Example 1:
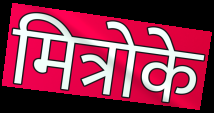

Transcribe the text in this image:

मित्रोके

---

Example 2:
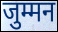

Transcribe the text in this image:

जुम्मन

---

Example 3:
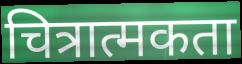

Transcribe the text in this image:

चित्रात्मकता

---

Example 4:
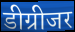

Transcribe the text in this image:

डीग्रीजर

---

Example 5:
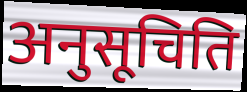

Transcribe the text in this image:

अनुसूचिति